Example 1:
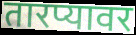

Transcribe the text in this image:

तारप्यावर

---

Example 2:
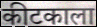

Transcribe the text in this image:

कीटकाला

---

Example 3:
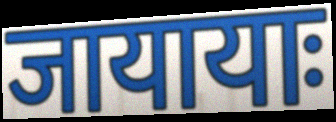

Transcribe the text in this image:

जायायाः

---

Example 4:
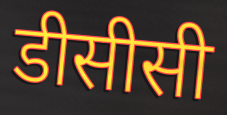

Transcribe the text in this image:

डीसीसी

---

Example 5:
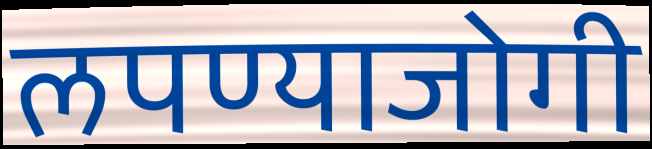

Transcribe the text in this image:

लपण्याजोगी